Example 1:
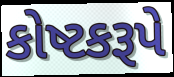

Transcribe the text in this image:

કોષ્ટકરૂપે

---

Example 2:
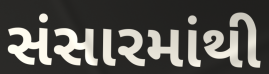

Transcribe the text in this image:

સંસારમાંથી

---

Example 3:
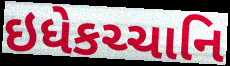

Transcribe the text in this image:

ઇધેકચ્ચાનિ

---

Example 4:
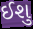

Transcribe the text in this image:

ઈશુ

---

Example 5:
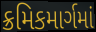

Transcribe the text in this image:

ક્રમિકમાર્ગમાં